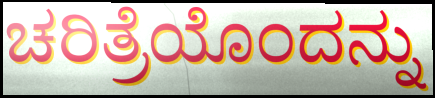
ಚರಿತ್ರೆಯೊಂದನ್ನು